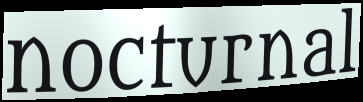
nocturnal